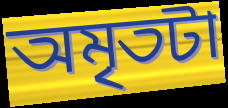
অমৃতটা